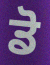
ਡੋ